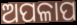
ଅପଳାପ